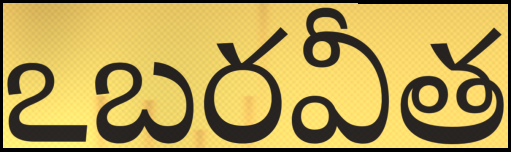
ఽబరవీత